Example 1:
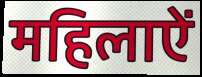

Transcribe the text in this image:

महिलाऐं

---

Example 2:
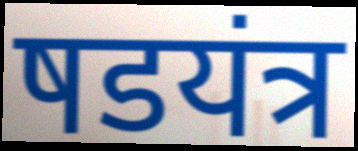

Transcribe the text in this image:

षडयंत्र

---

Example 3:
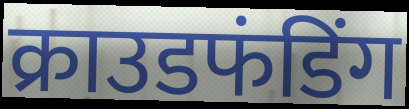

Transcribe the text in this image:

क्राउडफंडिंग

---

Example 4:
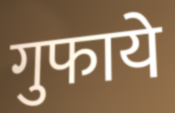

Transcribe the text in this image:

गुफाये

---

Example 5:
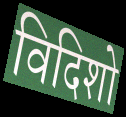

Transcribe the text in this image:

विदिशो